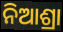
ନିଆଶ୍ରା